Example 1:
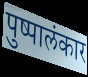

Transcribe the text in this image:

पुष्पालंकार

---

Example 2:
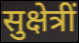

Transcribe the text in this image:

सुक्षेत्रीं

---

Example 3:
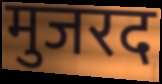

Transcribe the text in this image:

मुजरद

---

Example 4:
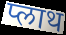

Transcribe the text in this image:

प्लाथ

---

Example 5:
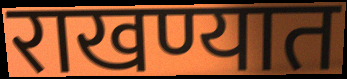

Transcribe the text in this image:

राखण्यात